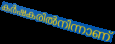
കർഷകരിൽനിന്നാണ്